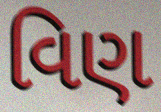
વિણ